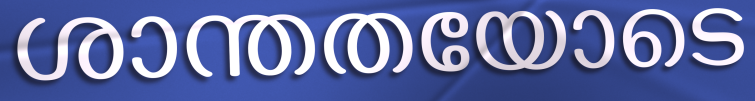
ശാന്തതയോടെ